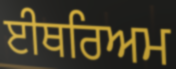
ਈਥਰਿਅਮ